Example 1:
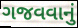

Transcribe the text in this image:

ગજવવાનું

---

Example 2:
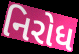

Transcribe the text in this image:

નિરોધ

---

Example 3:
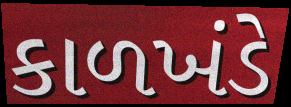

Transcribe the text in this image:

કાળખંડે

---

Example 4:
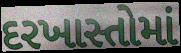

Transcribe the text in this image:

દરખાસ્તોમાં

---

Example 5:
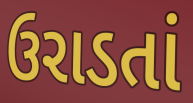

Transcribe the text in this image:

ઉરાડતાં